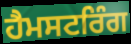
ਹੈਮਸਟਰਿੰਗ